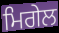
ਮਿਗੇਲ